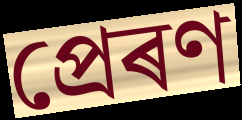
প্ৰেৰণ